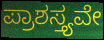
ಪ್ರಾಶಸ್ತ್ಯವೇ